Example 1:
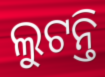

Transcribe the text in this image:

ଲୁଟନ୍ତି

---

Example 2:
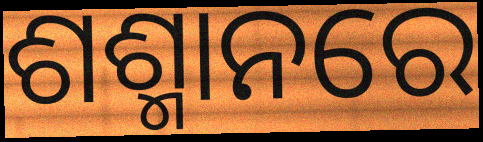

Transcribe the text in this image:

ଶଶ୍ମାନରେ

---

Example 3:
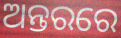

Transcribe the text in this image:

ଅନ୍ତରରେ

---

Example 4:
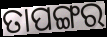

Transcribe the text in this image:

ତାପଙ୍ଗର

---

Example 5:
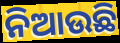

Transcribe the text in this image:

ନିଆଉଛି